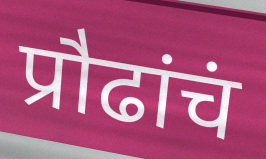
प्रौढांचं